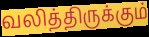
வலித்திருக்கும்